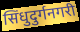
सिंधुदुर्गनगरी